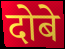
दोबे